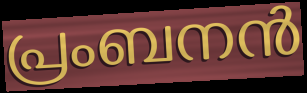
പ്രംബനൻ